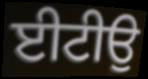
ਈਟੀਉ